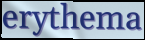
erythema